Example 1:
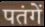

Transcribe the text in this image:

पतंगें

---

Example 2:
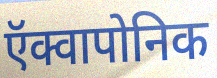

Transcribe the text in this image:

ऍक्वापोनिक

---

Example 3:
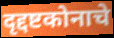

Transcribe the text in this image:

दृद्दष्टकोनाचे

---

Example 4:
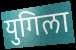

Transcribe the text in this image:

युगिला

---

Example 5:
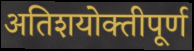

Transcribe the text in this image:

अतिशयोक्तीपूर्ण